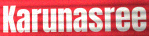
Karunasree